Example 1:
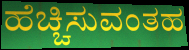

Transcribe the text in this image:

ಹೆಚ್ಚಿಸುವಂತಹ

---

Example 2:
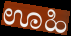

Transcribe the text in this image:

ಊಹಿ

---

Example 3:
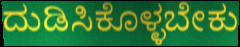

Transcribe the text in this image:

ದುಡಿಸಿಕೊಳ್ಳಬೇಕು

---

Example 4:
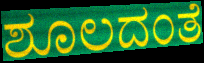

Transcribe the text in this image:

ಶೂಲದಂತೆ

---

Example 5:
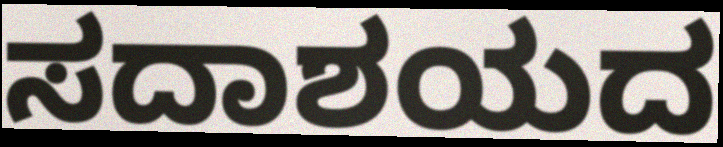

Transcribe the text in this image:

ಸದಾಶಯದ